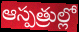
ఆస్పత్రుల్లో